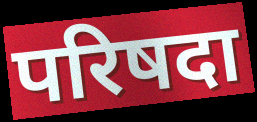
परिषदा